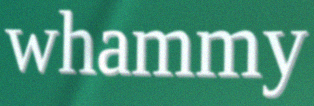
whammy